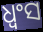
ଧ୍ଵଂସ